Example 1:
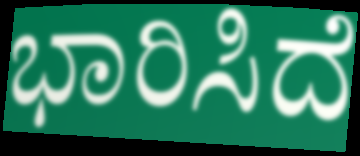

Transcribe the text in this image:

ಭಾರಿಸಿದೆ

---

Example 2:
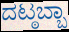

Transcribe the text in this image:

ದಟ್ಠಬ್ಬಾ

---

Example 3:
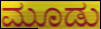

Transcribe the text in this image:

ಮೂಡು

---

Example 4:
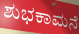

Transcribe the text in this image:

ಶುಭಕಾಮನೆ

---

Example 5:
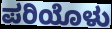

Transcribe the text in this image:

ಪರಿಯೊಳು